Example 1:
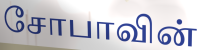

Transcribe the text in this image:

சோபாவின்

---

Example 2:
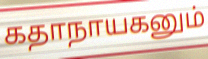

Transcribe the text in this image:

கதாநாயகனும்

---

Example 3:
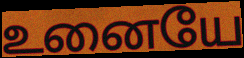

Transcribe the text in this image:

உனையே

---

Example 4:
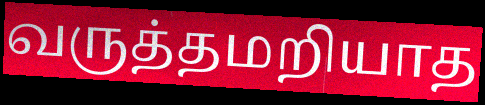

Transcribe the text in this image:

வருத்தமறியாத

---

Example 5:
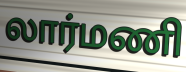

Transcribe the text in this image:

லார்மணி